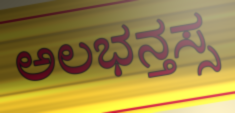
ಅಲಭನ್ತಸ್ಸ